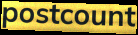
postcount